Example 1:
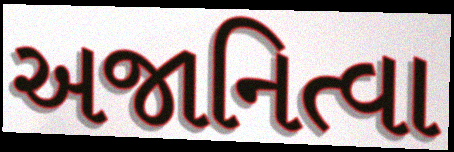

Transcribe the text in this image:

અજાનિત્વા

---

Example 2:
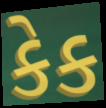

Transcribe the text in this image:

કેક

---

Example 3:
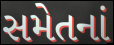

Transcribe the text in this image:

સમેતનાં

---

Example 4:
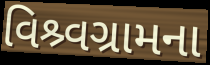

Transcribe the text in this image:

વિશ્ર્વગ્રામના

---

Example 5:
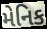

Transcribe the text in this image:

મેનિક